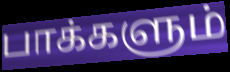
பாக்களும்